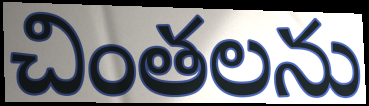
చింతలను